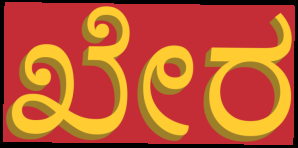
ಖೇರ